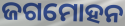
ଜଗମୋହନ